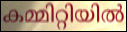
കമ്മിറ്റിയിൽ